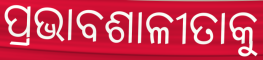
ପ୍ରଭାବଶାଳୀତାକୁ